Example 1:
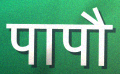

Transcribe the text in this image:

पापौ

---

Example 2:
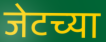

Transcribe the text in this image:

जेटच्या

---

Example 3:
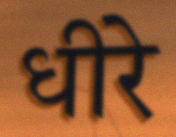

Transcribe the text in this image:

धीरे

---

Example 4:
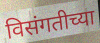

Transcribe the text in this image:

विसंगतीच्या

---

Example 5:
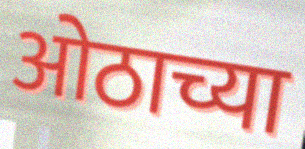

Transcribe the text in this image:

ओठाच्या